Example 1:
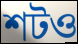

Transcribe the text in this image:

শটও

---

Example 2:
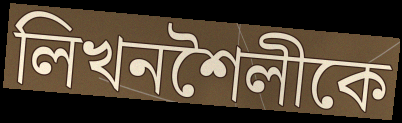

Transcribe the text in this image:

লিখনশৈলীকে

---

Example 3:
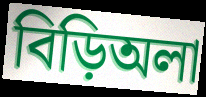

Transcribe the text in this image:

বিড়িঅলা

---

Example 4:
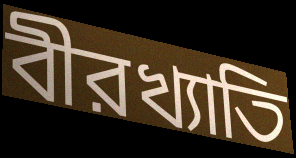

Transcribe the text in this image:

বীরখ্যাতি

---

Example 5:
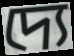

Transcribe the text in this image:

দ্যে